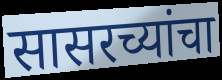
सासरच्यांचा